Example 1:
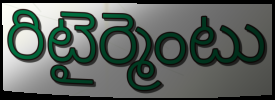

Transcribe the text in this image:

రిటైర్మెంటు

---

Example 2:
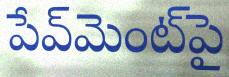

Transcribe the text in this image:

పేవ్‌మెంట్‌పై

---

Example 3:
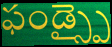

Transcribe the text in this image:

ఫండ్స్పై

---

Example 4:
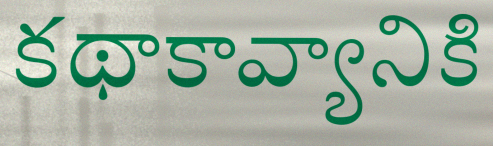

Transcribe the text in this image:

కథాకావ్యానికి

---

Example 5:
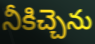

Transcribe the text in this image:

నీకిచ్చెను